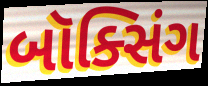
બૉક્સિંગ